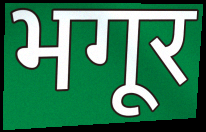
भगूर